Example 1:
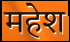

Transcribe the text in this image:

महेश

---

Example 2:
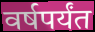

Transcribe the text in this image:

वर्षपर्यंत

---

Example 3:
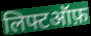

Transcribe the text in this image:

लिफ्टऑफ़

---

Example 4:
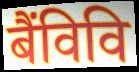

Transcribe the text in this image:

बैंविवि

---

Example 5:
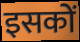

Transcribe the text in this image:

इसकों